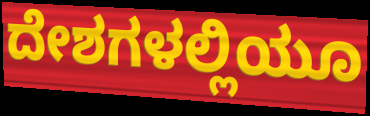
ದೇಶಗಳಲ್ಲಿಯೂ